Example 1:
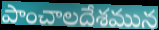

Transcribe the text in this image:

పాంచాలదేశమున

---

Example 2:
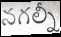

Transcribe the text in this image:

నగల్నీ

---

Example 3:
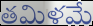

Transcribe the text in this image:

తమిళమే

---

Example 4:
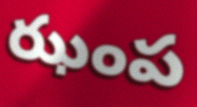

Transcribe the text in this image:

ఝంప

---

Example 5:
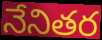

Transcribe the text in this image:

నేనితర